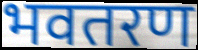
भवतरण